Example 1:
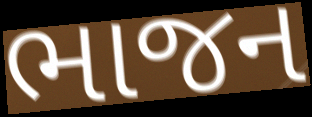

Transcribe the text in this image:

ભાજન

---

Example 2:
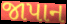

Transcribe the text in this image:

જાપાન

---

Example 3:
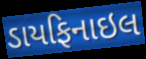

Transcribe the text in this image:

ડાયફિનાઇલ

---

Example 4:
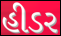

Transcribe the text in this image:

હીડર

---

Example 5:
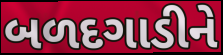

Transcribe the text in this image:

બળદગાડીને